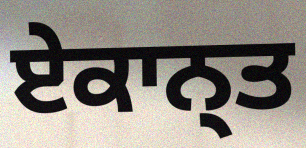
ਏਕਾਨ੍ਤ